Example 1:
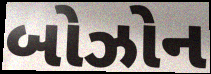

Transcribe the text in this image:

બોઝોન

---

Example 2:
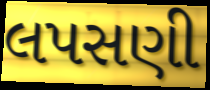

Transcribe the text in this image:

લપસણી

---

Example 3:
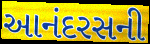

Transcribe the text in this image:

આનંદરસની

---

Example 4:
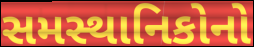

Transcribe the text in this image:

સમસ્થાનિકોનો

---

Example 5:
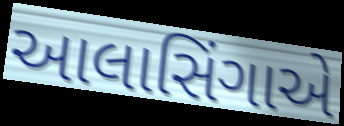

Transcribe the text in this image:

આલાસિંગાએ